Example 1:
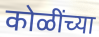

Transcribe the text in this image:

कोळींच्या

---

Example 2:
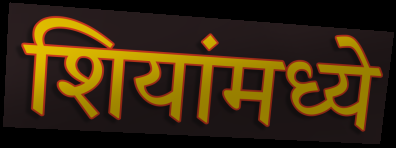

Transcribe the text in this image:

शियांमध्ये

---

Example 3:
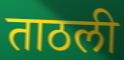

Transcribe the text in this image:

ताठली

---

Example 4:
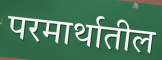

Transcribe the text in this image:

परमार्थातील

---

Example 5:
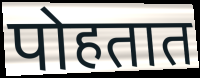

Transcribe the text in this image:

पोहतात